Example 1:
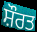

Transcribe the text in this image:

ਸ਼ੌਰਤ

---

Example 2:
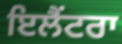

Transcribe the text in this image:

ਇਲੈਂਟਰਾ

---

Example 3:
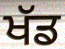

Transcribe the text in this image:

ਖੱਡ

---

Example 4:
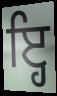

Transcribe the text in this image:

ਇ੍ਹ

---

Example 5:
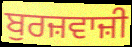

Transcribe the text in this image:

ਬੁਰਜ਼ਵਾਜ਼ੀ